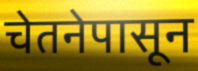
चेतनेपासून